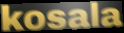
kosala